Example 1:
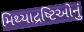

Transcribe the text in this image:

મિથ્યાદ્રષ્ટિઓનું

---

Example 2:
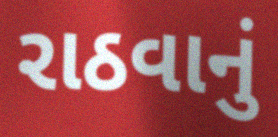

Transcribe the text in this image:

રાઠવાનું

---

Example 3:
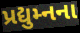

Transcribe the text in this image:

પ્રદ્યુમ્નના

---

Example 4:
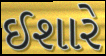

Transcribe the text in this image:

ઈશારે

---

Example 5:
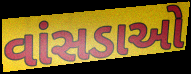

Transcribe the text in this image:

વાંસડાઓ